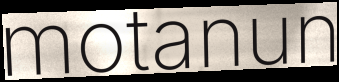
motanun